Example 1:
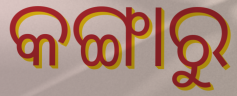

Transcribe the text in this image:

କଙ୍ଗାରୁ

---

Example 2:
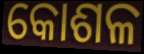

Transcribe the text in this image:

କୋଶଳ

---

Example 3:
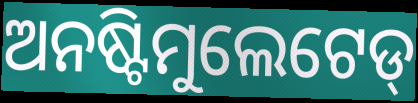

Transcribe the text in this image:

ଅନଷ୍ଟିମୁଲେଟେଡ୍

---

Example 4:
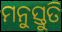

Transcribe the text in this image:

ମନୁସ୍ତୁତି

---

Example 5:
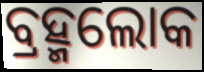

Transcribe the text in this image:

ବ୍ରହ୍ମଲୋକ